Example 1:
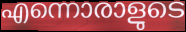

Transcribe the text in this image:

എന്നൊരാളുടെ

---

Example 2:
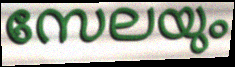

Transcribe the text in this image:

സേലയും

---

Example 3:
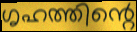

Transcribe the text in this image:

ഗൃഹത്തിന്റെ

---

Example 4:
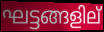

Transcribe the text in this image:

ഘട്ടങ്ങളില്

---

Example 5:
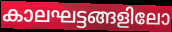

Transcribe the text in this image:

കാലഘട്ടങ്ങളിലോ